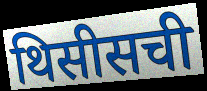
थिसीसची